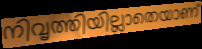
നിവൃത്തിയില്ലാതെയാണ്